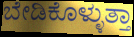
ಬೇಡಿಕೊಳ್ಳುತ್ತಾ